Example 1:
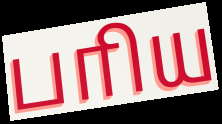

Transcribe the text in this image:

பரிய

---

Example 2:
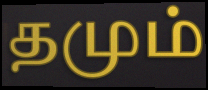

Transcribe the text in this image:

தமும்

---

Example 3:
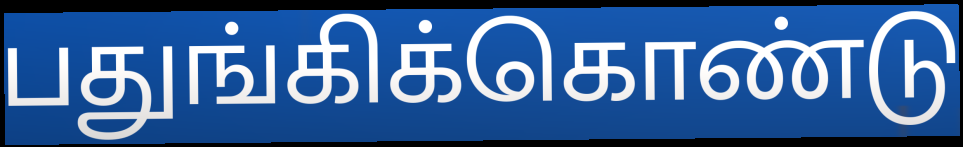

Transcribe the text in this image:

பதுங்கிக்கொண்டு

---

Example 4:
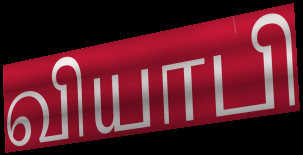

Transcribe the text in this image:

வியாபி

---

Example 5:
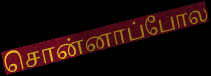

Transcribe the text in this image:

சொன்னாப்போல